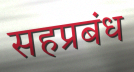
सहप्रबंध